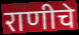
राणीचे